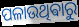
ପଳାଉଥିଵାରୁ